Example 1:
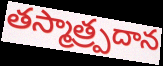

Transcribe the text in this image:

తస్మాత్ర్పదాన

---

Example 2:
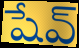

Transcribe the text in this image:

షేవ్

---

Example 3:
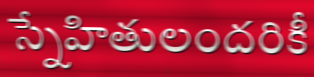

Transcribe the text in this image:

స్నేహితులందరికీ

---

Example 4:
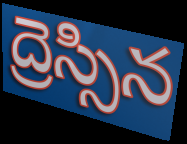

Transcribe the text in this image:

ద్రెస్సిన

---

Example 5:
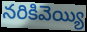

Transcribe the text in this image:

నరికివెయ్యి